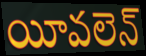
యీవలెన్